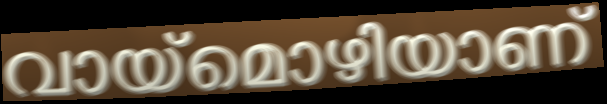
വായ്മൊഴിയാണ്